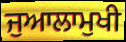
ਜੁਆਲਾਮੁਖੀ